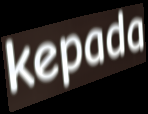
kepada